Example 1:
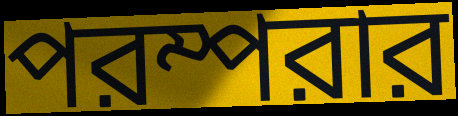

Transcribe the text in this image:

পরম্পরার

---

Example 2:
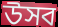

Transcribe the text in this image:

উসব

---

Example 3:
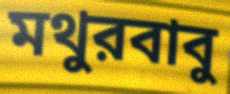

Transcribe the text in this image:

মথুরবাবু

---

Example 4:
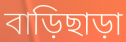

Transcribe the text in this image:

বাড়িছাড়া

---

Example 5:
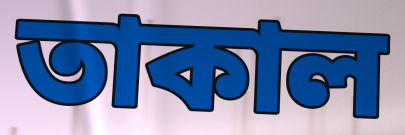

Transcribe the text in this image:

তাকাল